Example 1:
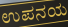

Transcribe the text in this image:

ಉಪನಯ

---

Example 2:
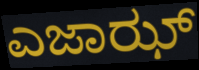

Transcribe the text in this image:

ಎಜಾಝ್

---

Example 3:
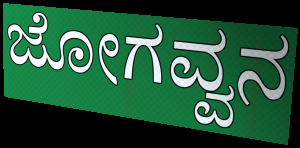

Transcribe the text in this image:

ಜೋಗವ್ವನ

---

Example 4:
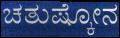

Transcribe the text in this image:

ಚತುಷ್ಕೋನ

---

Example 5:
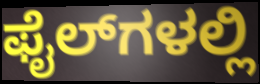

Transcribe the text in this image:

ಫೈಲ್‌ಗಳಲ್ಲಿ